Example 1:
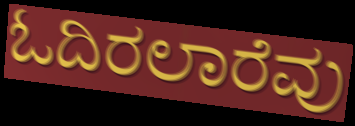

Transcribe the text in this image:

ಓದಿರಲಾರೆವು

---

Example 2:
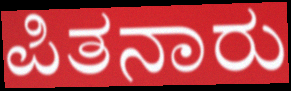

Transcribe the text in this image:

ಪಿತನಾರು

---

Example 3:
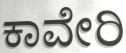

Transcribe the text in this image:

ಕಾವೇರಿ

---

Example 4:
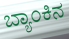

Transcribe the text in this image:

ಬ್ಯಾಂಕಿನ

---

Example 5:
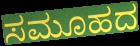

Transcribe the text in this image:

ಸಮೂಹದ